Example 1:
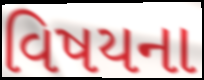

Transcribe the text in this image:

વિષયના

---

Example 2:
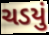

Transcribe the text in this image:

ચડયું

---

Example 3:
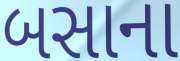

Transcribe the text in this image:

બસાના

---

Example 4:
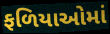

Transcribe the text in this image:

ફળિયાઓમાં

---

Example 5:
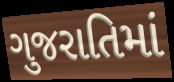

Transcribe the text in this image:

ગુજરાતિમાં